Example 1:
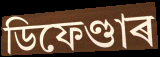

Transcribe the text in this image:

ডিফেণ্ডাৰ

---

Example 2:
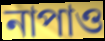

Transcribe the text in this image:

নাপাও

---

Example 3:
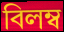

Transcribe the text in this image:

বিলম্ব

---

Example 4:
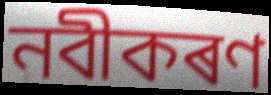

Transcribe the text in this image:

নবীকৰণ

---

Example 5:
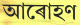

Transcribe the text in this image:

আৰোহণ